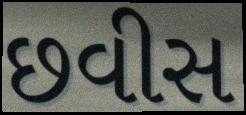
છવીસ